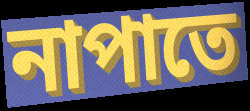
নাপাতে